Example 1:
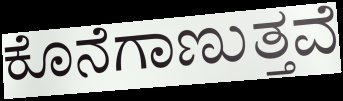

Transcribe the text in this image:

ಕೊನೆಗಾಣುತ್ತವೆ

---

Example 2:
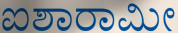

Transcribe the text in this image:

ಐಶಾರಾಮೀ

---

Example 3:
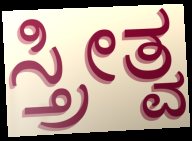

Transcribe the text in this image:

ಸ್ತ್ರೀತ್ವ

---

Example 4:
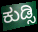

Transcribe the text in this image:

ಕುಡ್ಸಿ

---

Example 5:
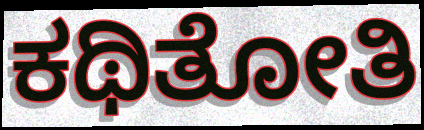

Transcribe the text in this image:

ಕಥಿತೋತಿ